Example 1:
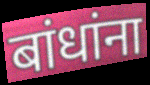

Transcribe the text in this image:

बांधांना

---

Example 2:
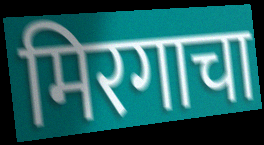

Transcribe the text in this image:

मिरगाचा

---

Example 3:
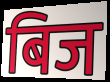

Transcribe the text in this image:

बिज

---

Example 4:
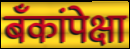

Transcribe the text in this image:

बँकांपेक्षा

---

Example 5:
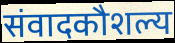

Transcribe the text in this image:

संवादकौशल्य